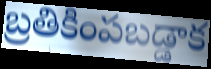
బ్రతికింపబడ్డాక